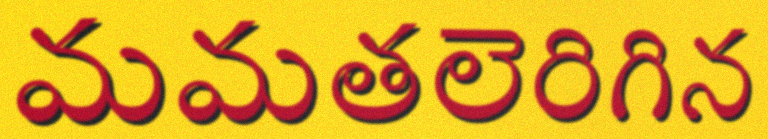
మమతలెరిగిన